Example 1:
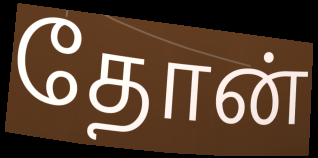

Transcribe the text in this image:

தோன்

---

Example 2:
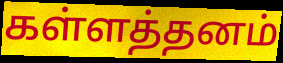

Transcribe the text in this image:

கள்ளத்தனம்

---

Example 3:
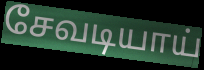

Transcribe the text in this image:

சேவடியாய்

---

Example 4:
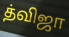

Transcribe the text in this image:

த்விஜா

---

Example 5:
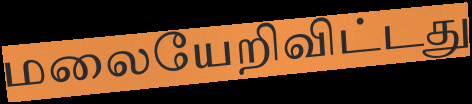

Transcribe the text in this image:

மலையேறிவிட்டது